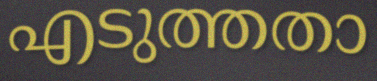
എടുത്തതാ